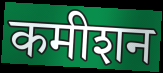
कमीशन